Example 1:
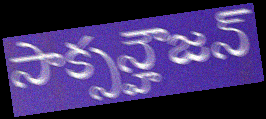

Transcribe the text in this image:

సాక్సన్హౌజన్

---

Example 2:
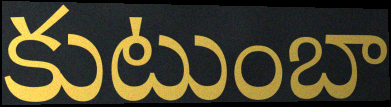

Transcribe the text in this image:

కుటుంబా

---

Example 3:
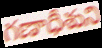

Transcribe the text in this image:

గణాధీశుని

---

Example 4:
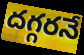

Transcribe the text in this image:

దగ్గరనే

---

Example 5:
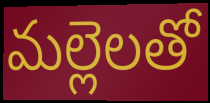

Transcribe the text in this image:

మల్లెలతో